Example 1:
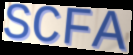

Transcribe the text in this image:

SCFA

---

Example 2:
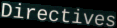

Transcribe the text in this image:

Directives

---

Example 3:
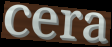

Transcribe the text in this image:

cera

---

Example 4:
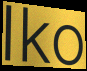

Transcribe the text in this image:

Iko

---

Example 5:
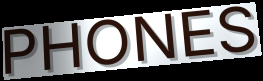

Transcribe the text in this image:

PHONES